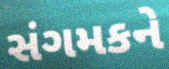
સંગમકને